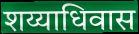
शय्याधिवास